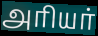
அரியர்